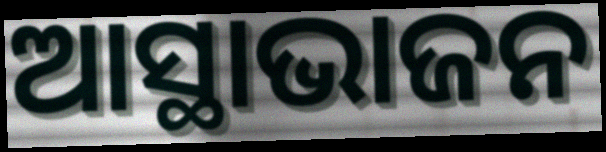
ଆସ୍ଥାଭାଜନ